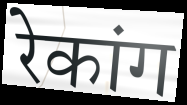
रेकांग